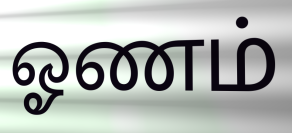
ஓணம்